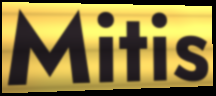
Mitis